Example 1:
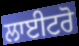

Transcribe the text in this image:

ਲਾਈਟਰੋ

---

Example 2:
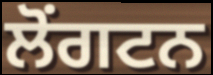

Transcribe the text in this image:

ਲੋਂਗਟਨ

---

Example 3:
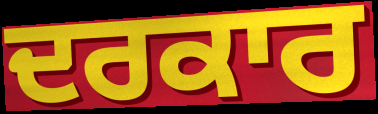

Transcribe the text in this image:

ਦਰਕਾਰ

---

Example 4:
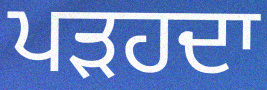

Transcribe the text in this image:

ਪੜਹਦਾ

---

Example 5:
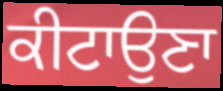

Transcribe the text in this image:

ਕੀਟਾਉਣਾ